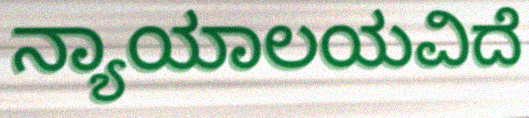
ನ್ಯಾಯಾಲಯವಿದೆ